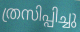
ത്രസിപ്പിച്ചു